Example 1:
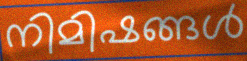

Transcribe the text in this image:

നിമിഷങ്ങൾ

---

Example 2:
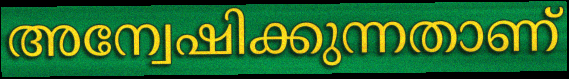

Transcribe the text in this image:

അന്വേഷിക്കുന്നതാണ്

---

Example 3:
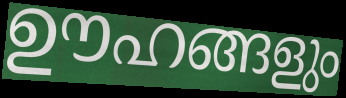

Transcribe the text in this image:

ഊഹങ്ങളും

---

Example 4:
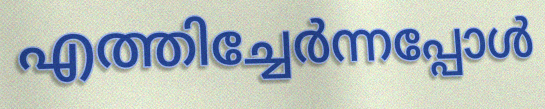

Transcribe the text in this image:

എത്തിച്ചേർന്നപ്പോൾ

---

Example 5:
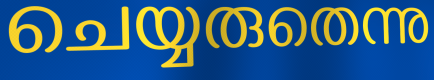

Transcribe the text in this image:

ചെയ്യരുതെന്നു